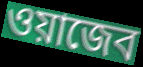
ওয়াজেব